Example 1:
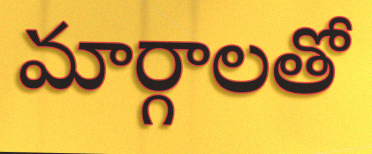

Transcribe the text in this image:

మార్గాలతో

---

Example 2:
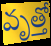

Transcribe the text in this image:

వృత్తో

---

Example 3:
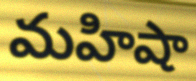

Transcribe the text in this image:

మహిషా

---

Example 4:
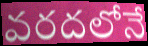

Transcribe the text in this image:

వరదలోనే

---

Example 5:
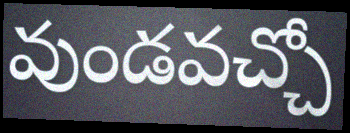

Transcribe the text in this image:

వుండవచ్చో